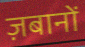
ज़बानों